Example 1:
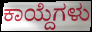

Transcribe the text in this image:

ಕಾಯ್ದೆಗಳು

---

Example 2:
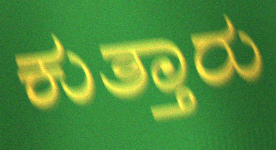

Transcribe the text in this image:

ಕುತ್ತಾರು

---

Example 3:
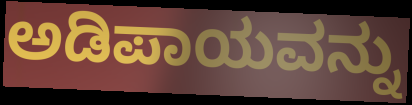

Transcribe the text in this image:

ಅಡಿಪಾಯವನ್ನು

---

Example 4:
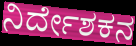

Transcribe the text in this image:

ನಿರ್ದೇಶಕನ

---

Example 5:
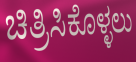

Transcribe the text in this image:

ಚಿತ್ರಿಸಿಕೊಳ್ಳಲು